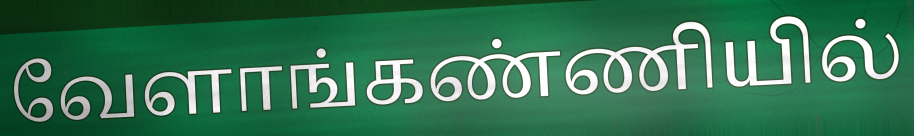
வேளாங்கண்ணியில்